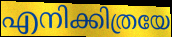
എനിക്കിത്രയേ